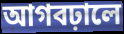
আগবঢ়ালে